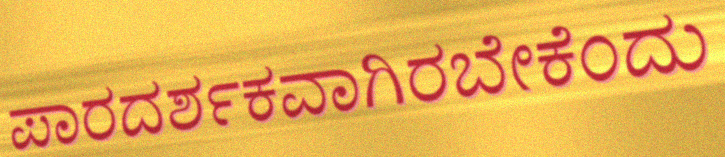
ಪಾರದರ್ಶಕವಾಗಿರಬೇಕೆಂದು